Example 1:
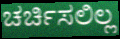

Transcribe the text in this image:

ಚರ್ಚಿಸಲಿಲ್ಲ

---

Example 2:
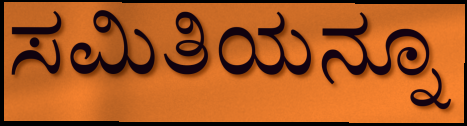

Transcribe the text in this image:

ಸಮಿತಿಯನ್ನೂ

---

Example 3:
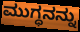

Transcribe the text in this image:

ಮುಗ್ಧನನ್ನು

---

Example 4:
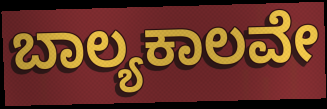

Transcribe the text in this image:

ಬಾಲ್ಯಕಾಲವೇ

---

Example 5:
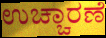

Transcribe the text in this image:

ಉಚ್ಚಾರಣೆ